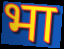
भा